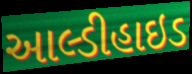
આલ્ડીહાઇડ